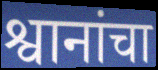
श्वानांचा